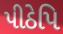
પીઠેપિ